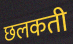
छलकती